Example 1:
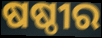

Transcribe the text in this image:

ଷଷ୍ଠୀର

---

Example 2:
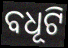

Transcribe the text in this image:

ବଧୂଟି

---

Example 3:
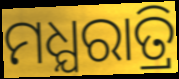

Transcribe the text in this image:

ମଧ୍ଯରାତ୍ରି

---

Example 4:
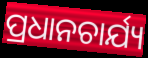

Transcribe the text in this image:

ପ୍ରଧାନଚାର୍ଯ୍ୟ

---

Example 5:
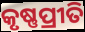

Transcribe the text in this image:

କୃଷ୍ଣପ୍ରୀତି